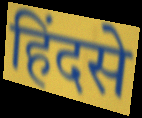
हिंदसे